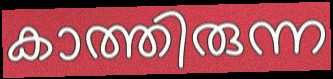
കാത്തിരുന്ന